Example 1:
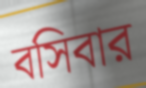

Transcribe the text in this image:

বসিবার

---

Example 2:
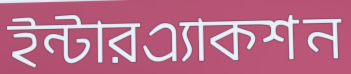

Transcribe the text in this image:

ইন্টারএ্যাকশন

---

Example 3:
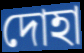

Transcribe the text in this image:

দোহা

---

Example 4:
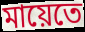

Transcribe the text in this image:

মায়েতে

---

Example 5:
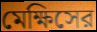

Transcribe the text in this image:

মেক্ষিসের